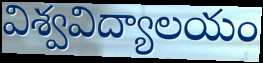
విశ్వవిద్యాలయం